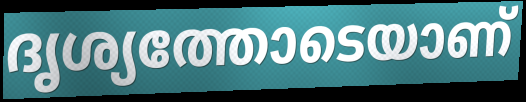
ദൃശ്യത്തോടെയാണ്